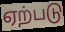
ஏற்படு